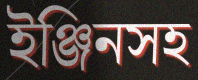
ইঞ্জিনসহ